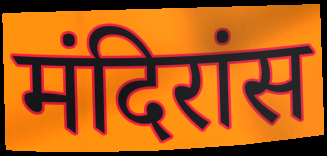
मंदिरांस